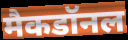
मैकडॉनल